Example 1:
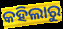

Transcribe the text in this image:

କହିଲାରୁ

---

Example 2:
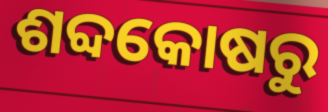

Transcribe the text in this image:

ଶବ୍ଦକୋଷରୁ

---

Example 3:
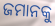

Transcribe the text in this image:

ଜମାନକୁ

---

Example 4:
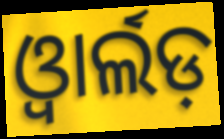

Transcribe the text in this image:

ଓ୍ୱାର୍ଲଡ଼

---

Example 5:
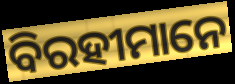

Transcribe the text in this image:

ବିରହୀମାନେ